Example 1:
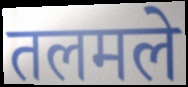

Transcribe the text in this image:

तलमले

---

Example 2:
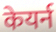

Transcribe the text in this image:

केयर्न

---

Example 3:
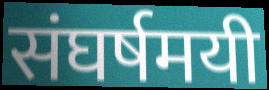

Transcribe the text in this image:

संघर्षमयी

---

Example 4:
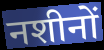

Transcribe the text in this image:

नशीनों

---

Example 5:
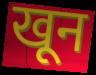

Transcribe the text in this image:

खून